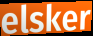
elsker